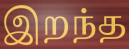
இறந்த